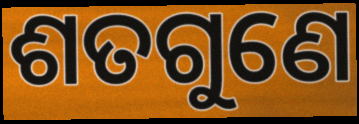
ଶତଗୁଣେ